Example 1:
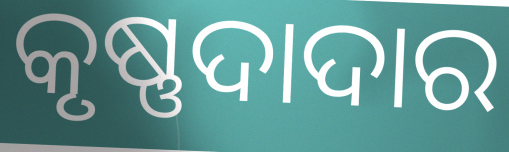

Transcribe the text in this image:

କୃଷ୍ଣଦାଦାର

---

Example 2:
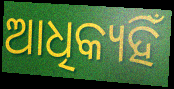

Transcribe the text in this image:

ଆଧିକ୍ୟହିଁ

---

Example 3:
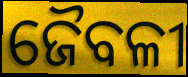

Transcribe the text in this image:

ଜୈବଳୀ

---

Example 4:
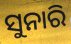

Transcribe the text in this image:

ସୁନାରି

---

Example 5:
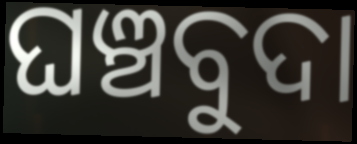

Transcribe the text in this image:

ଘଞ୍ଚବୁଦା